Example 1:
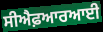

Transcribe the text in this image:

ਸੀਐਫ਼ਆਰਆਈ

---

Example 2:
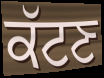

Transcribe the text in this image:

ਕੱਟਣ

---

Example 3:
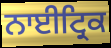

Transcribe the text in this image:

ਨਾਈਟ੍ਰਿਕ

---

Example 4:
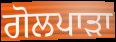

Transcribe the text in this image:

ਗੋਲਪਾੜਾ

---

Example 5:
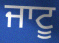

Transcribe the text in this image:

ਜਾਟੂ